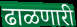
ढाळणारी